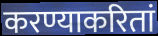
करण्याकरितां